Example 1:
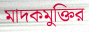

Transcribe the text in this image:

মাদকমুক্তির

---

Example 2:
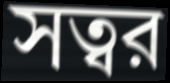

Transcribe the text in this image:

সত্বর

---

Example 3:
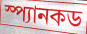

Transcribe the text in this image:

স্প্যানকড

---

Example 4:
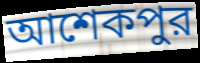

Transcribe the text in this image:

আশেকপুর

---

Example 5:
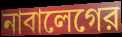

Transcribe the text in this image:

নাবালেগের